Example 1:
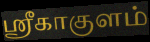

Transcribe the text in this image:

ஸ்ரீகாகுளம்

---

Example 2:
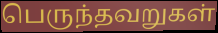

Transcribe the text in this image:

பெருந்தவறுகள்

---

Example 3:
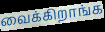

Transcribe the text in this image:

வைக்கிறாங்க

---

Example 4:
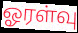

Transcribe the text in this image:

ஓரள்வு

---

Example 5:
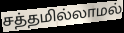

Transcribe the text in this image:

சத்தமில்லாமல்